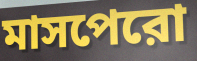
মাসপেরো